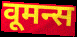
वूमन्स